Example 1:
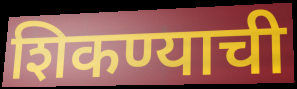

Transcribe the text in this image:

शिकण्याची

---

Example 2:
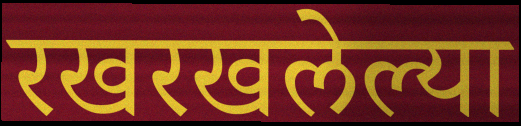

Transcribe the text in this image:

रखरखलेल्या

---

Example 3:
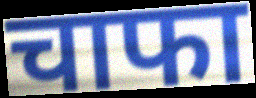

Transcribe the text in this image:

चाफा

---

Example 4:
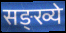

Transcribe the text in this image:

सङ्ख्ये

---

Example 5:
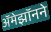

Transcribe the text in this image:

ॲमेझॉनने